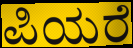
ಪಿಯರೆ